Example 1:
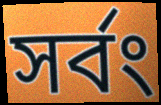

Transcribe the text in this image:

সর্বং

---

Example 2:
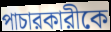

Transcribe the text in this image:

পাচারকারীকে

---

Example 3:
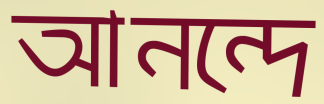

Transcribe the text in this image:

আনন্দে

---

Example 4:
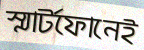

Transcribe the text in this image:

স্মার্টফোনেই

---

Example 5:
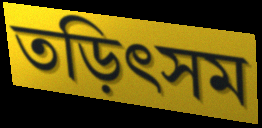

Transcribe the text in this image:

তড়িৎসম